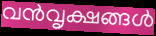
വൻവൃക്ഷങ്ങൾ